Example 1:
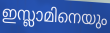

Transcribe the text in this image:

ഇസ്ലാമിനെയും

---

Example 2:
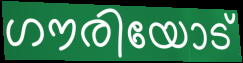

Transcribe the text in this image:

ഗൗരിയോട്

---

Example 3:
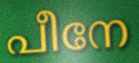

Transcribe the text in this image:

പീനേ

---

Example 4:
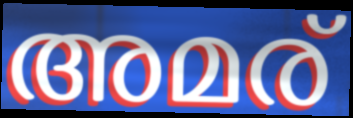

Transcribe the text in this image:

അമര്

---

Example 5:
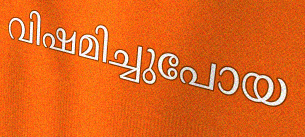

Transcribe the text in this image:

വിഷമിച്ചുപോയ